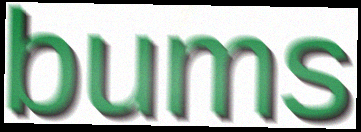
bums